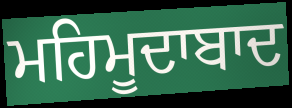
ਮਹਿਮੂਦਾਬਾਦ